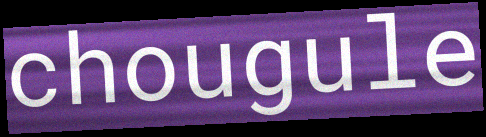
chougule